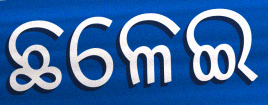
ଛଳେଇ